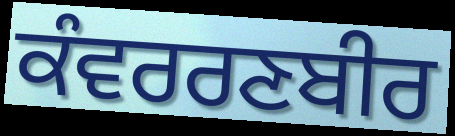
ਕੰਵਰਰਣਬੀਰ